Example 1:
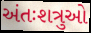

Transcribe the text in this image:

અંતઃશત્રુઓ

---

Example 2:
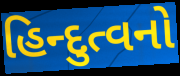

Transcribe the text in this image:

હિન્દુત્વનો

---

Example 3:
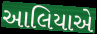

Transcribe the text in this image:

આલિયાએ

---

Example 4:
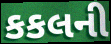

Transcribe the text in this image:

કકલની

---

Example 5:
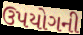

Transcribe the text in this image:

ઉપયોગની